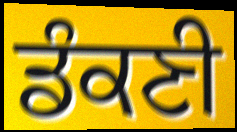
ਡੰਕਣੀ